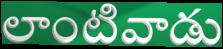
లాంటివాడు